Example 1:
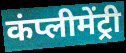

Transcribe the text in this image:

कंप्लीमेंट्री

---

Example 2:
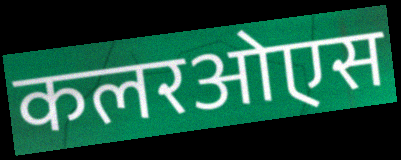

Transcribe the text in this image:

कलरओएस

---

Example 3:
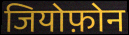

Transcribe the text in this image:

जियोफ़ोन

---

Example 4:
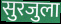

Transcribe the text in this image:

सुरजुला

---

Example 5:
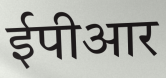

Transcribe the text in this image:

ईपीआर